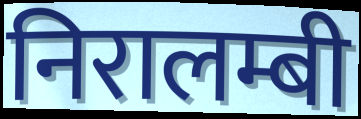
निरालम्बी